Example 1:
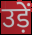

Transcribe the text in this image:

उड़ें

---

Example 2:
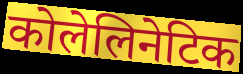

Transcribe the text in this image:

कोलेलिनेटिक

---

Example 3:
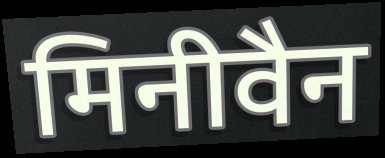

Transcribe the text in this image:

मिनीवैन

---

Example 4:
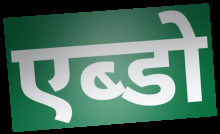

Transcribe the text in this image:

एब्डो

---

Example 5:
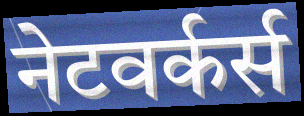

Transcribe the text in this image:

नेटवर्कर्स